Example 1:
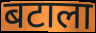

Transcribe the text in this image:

बटाला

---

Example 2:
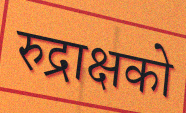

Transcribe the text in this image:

रुद्राक्षको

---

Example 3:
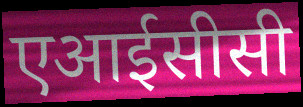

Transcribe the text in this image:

एआईसीसी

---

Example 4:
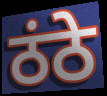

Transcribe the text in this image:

ठंठे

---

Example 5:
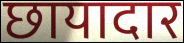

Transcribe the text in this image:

छायादार